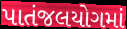
પાતંજલયોગમાં